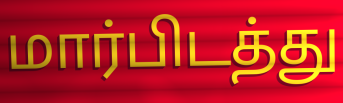
மார்பிடத்து